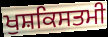
ਖੁਸ਼ਕਿਸਤਮੀ